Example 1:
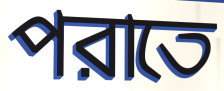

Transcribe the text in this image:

পরাতে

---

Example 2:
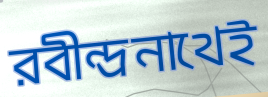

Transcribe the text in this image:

রবীন্দ্রনাথেই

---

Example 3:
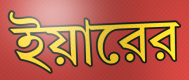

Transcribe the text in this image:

ইয়ারের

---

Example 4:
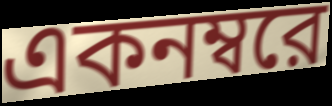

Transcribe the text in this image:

একনম্বরে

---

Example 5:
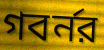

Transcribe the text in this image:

গবর্নর